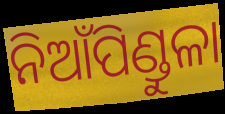
ନିଆଁପିଣ୍ଡୁଳା